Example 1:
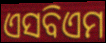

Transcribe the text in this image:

ଏସବିଏମ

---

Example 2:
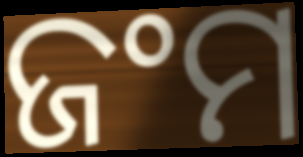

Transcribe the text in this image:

ଜଂମ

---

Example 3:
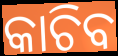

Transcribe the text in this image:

କାଚିବ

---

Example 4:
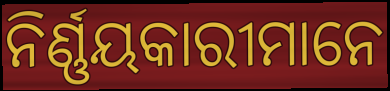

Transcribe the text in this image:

ନିର୍ଣ୍ଣୟକାରୀମାନେ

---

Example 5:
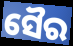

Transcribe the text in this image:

ସୈର